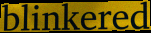
blinkered